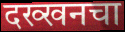
दख्खनचा